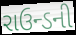
રાઉન્ડની